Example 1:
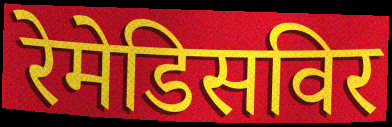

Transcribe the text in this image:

रेमेडिसविर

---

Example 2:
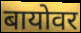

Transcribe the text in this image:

बायोवर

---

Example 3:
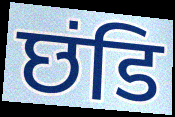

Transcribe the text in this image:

छंडि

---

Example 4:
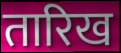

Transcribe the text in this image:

तारिख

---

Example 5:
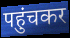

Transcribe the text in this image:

पहुंचकर